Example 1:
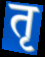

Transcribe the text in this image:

तृ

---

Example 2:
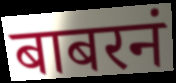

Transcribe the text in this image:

बाबरनं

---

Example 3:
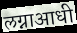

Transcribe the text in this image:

लग्नाआधी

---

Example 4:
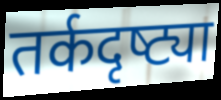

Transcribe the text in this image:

तर्कदृष्ट्या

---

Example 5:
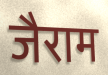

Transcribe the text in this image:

जैराम